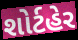
શોર્ટહેર